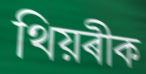
থিয়ৰীক